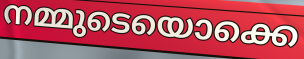
നമ്മുടെയൊക്കെ